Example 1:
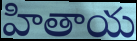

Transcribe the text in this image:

హితాయ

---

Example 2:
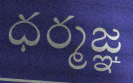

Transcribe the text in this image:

ధర్మజ్ఞ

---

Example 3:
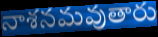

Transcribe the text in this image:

నాశనమవుతారు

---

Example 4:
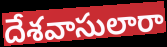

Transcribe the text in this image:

దేశవాసులారా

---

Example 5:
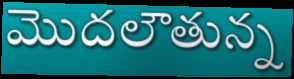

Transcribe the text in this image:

మొదలౌతున్న